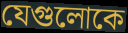
যেগুলোকে